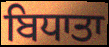
ਬਿਧਾਤਾ